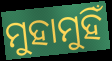
ମୁହାମୁହିଁ